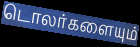
டொலர்களையும்